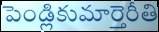
పెండ్లికుమార్తెరీతి